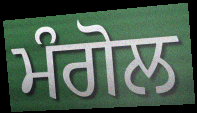
ਮੰਗੋਲ